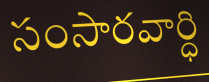
సంసారవార్ధి